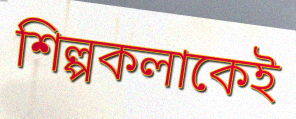
শিল্পকলাকেই